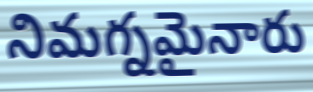
నిమగ్నమైనారు